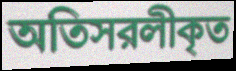
অতিসরলীকৃত